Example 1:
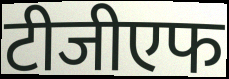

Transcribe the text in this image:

टीजीएफ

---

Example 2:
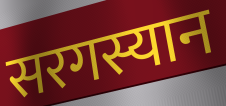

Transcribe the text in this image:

सरगस्यान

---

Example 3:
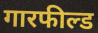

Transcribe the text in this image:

गारफील्ड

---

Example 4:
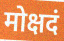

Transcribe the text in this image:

मोक्षदं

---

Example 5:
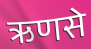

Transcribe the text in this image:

ऋणसे